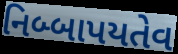
નિબ્બાપયતેવ